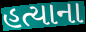
હત્યાના